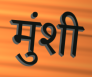
मुंशी